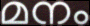
മനം